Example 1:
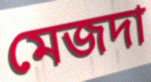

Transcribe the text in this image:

মেজদা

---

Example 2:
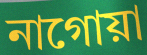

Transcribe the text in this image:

নাগোয়া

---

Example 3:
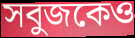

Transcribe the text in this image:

সবুজকেও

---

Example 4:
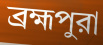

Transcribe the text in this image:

ব্রহ্মপুরা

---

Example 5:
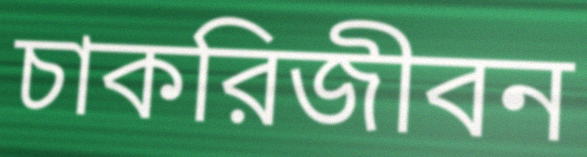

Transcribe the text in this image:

চাকরিজীবন